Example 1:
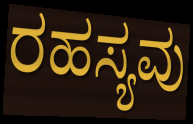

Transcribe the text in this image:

ರಹಸ್ಯವು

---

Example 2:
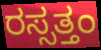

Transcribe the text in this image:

ರಸ್ಸತ್ತಂ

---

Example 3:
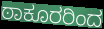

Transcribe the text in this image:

ಠಾಕೂರರಿಂದ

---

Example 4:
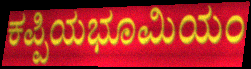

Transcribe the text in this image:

ಕಪ್ಪಿಯಭೂಮಿಯಂ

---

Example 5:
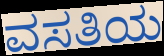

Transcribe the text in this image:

ವಸತಿಯ